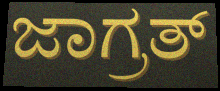
ಜಾಗ್ರತ್